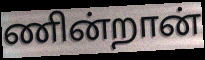
ணின்றான்